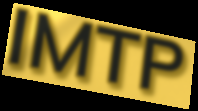
IMTP